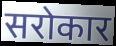
सरोकार